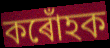
কৰোঁহক